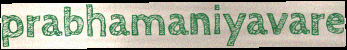
prabhamaniyavare